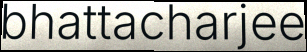
bhattacharjee